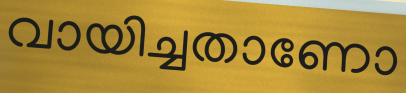
വായിച്ചതാണോ